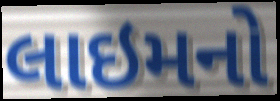
લાઇમનો